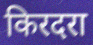
किरदरा